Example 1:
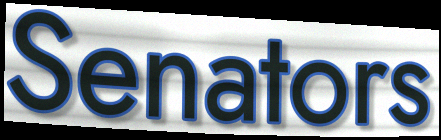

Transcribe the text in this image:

Senators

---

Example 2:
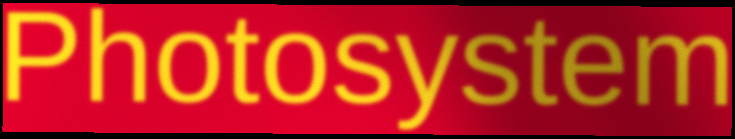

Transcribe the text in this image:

Photosystem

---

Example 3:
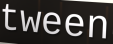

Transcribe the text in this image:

tween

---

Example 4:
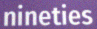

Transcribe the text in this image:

nineties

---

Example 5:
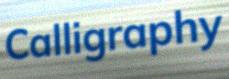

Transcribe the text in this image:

Calligraphy